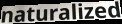
naturalized